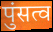
पुंसत्व